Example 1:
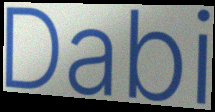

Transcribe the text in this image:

Dabi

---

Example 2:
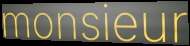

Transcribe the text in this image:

monsieur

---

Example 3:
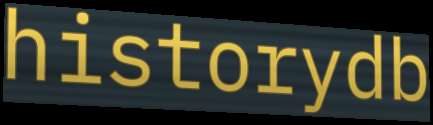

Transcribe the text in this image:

historydb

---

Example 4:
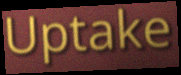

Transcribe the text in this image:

Uptake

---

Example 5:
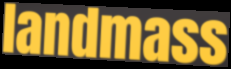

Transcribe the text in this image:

landmass